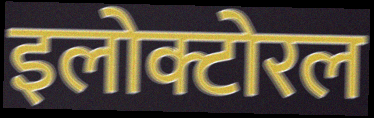
इलोक्टोरल